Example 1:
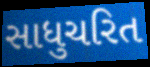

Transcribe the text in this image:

સાધુચરિત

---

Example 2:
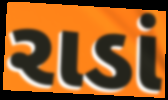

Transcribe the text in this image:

રાડાં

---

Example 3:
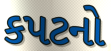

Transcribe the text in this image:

કપટનો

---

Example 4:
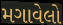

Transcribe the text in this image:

મગાવેલો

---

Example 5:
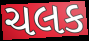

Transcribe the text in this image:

ચલક